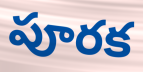
పూరక